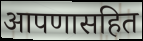
आपणासहित